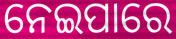
ନେଇପାରେ